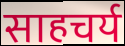
साहचर्य